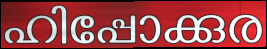
ഹിപ്പോക്കുര